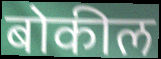
बोकील